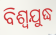
ବିଶ୍ୱଯୁଦ୍ଧ